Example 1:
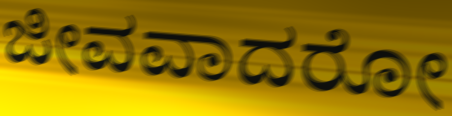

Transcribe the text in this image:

ಜೀವವಾದರೋ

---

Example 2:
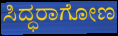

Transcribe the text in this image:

ಸಿದ್ಧರಾಗೋಣ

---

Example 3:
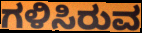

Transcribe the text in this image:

ಗಳಿಸಿರುವ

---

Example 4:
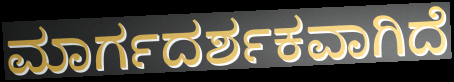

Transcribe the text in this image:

ಮಾರ್ಗದರ್ಶಕವಾಗಿದೆ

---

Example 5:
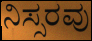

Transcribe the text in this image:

ನಿಸ್ಸರವು